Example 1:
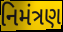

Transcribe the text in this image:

નિમંત્રણ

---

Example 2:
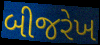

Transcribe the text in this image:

બીજરેખ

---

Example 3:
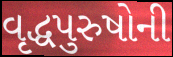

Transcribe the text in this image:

વૃદ્ધપુરુષોની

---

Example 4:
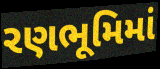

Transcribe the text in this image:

રણભૂમિમાં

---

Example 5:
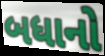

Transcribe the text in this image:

બધાનો